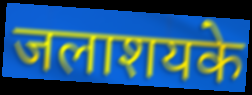
जलाशयके